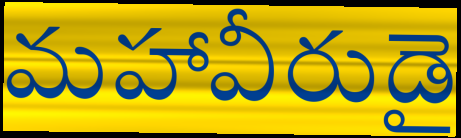
మహావీరుడై